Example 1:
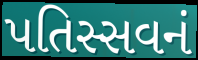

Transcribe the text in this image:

પતિસ્સવનં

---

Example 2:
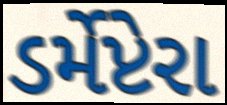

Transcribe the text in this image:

ડર્મેપ્ટેરા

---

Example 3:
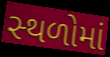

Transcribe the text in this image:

સ્‍થળોમાં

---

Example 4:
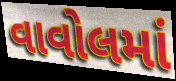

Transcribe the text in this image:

વાવોલમાં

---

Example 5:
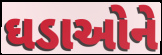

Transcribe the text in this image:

ઘડાઓને